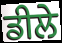
ਡੀਲੇ